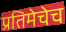
प्रतिमेचेच